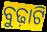
ବୁଢ଼ାଟି